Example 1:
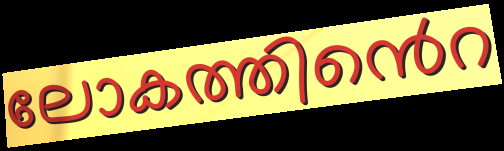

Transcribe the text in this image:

ലോകത്തിൻെറ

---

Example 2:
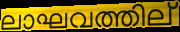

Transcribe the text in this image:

ലാഘവത്തില്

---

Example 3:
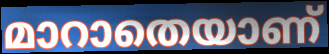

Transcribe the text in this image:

മാറാതെയാണ്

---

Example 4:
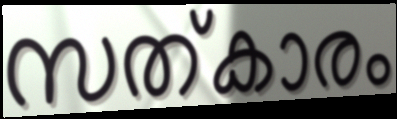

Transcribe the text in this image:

സത്കാരം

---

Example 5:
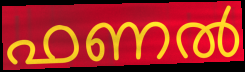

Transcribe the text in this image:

ഫണൽ